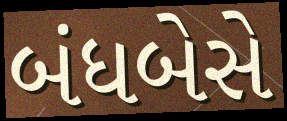
બંધબેસે